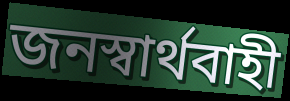
জনস্বার্থবাহী